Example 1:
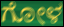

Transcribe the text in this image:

ಗೋಳ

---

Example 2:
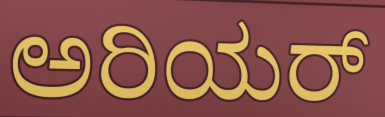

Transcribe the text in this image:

ಅರಿಯರ್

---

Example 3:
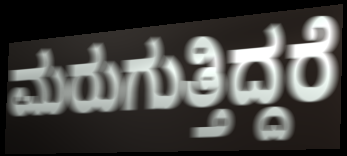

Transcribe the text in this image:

ಮರುಗುತ್ತಿದ್ದರೆ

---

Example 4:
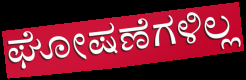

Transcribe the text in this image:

ಘೋಷಣೆಗಳಿಲ್ಲ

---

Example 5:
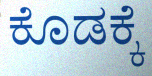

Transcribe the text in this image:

ಕೊಡಕ್ಕೆ